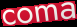
coma